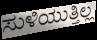
ಸುಳಿಯುತ್ತಿಲ್ಲ